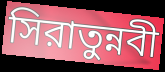
সিরাতুন্নবী